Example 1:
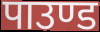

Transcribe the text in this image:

पाउण्‍ड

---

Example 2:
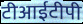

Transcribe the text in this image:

टीआईटीपी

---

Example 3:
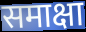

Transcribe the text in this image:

समाक्षा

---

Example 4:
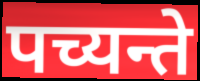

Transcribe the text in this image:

पच्यन्ते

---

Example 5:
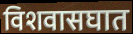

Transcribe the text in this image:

विशवासघात